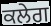
ਕਲੇਗ